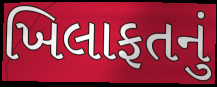
ખિલાફતનું